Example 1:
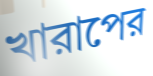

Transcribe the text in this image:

খারাপের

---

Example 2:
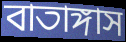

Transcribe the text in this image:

বাতাঙ্গাস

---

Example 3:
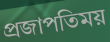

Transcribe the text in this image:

প্রজাপতিময়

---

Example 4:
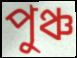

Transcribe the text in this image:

পুঞ্চ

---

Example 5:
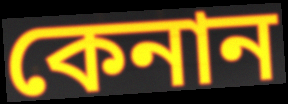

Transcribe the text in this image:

কেনান